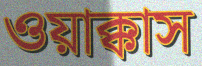
ওয়াক্কাস